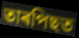
তাৰপিছত